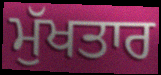
ਮੁੱਖਤਾਰ